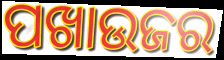
ପଖାଉଜର